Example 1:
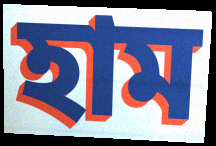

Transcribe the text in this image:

হাম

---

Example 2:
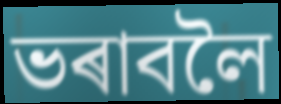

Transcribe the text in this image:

ভৰাবলৈ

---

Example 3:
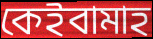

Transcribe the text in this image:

কেইবামাহ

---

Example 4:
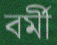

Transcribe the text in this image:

বৰ্মী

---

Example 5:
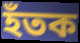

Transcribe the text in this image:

হঁতক